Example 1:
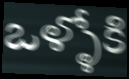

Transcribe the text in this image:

ఒళ్ళోకి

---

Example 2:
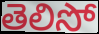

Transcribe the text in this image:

తెలిసో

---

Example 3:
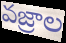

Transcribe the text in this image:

వజ్రాల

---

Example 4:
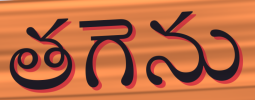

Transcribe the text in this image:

తగెను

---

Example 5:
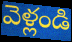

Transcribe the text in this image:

వెళ్లండి